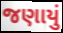
જણાયું